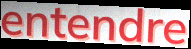
entendre